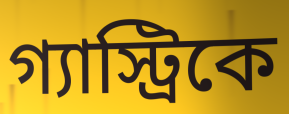
গ্যাস্ট্রিকে